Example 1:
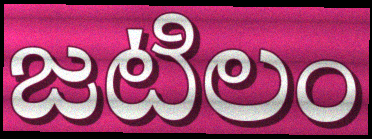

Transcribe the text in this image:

జటిలం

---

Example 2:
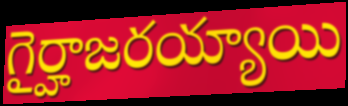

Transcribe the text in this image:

గైర్హాజరయ్యాయి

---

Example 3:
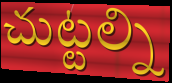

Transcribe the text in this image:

చుట్టల్ని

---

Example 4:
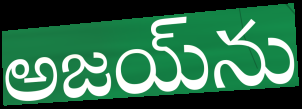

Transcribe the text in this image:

అజయ్‌ను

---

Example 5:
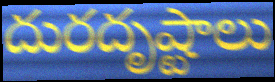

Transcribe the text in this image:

దురదృష్టాలు